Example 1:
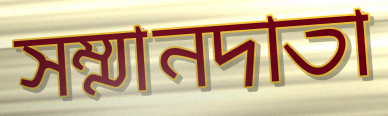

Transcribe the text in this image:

সম্মানদাতা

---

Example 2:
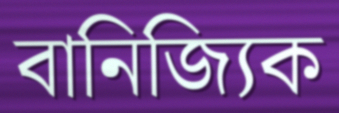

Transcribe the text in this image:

বানিজ্যিক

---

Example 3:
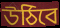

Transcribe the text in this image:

উঠিবে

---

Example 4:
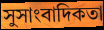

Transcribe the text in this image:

সুসাংবাদিকতা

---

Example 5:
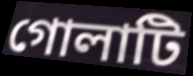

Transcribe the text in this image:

গোলাটি